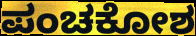
ಪಂಚಕೋಶ